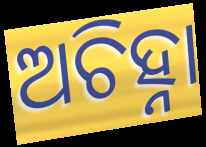
ଅଚିହ୍ନା